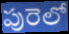
పురెలో